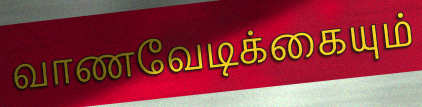
வாணவேடிக்கையும்